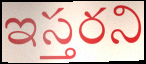
ఇస్తరని